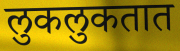
लुकलुकतात